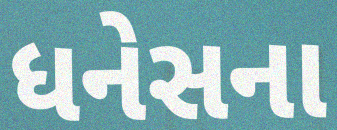
ધનેસના